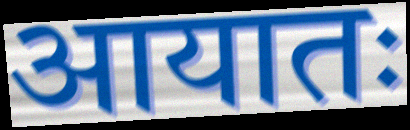
आयातः